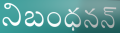
నిబంధనన్